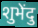
शुभेंदु